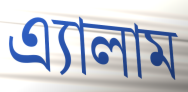
এ্যালাম